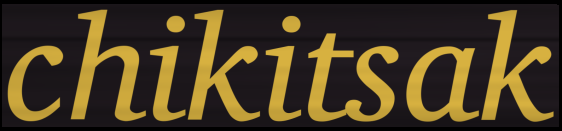
chikitsak